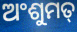
ଅଂଶୁମତ୍